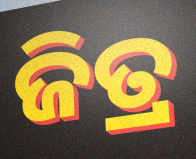
ଜିତ୍ର